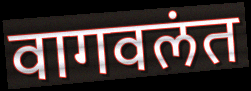
वागवलंत